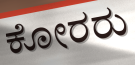
ಕೋರರು